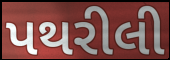
પથરીલી